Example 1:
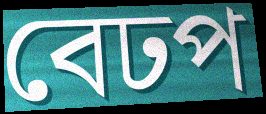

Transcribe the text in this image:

বেঢপ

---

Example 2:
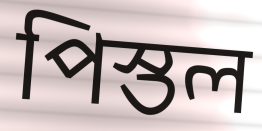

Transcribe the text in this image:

পিস্তল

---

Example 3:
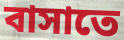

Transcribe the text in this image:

বাসাতে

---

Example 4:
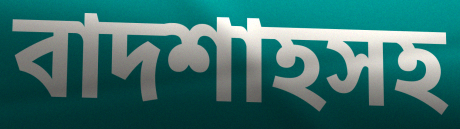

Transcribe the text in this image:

বাদশাহসহ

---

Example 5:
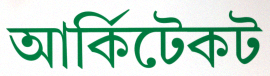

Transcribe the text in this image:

আর্কিটেকট